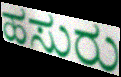
ಹಸುರು